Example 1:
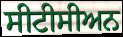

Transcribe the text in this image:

ਸੀਟੀਸੀਅਨ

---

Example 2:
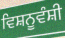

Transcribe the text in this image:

ਵਿਸ਼ਨੂਵੰਸ਼ੀ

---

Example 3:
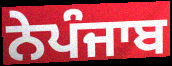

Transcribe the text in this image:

ਨੇਪੰਜਾਬ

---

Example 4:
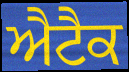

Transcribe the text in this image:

ਐਟੈਕ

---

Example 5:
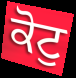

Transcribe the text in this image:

ਕੋਟੁ